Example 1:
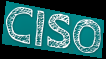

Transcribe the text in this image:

CISO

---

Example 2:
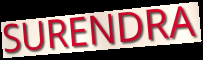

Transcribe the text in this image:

SURENDRA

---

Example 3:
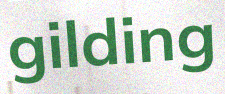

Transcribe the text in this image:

gilding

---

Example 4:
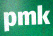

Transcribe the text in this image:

pmk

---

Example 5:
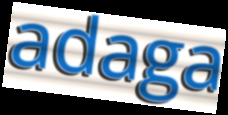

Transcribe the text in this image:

adaga